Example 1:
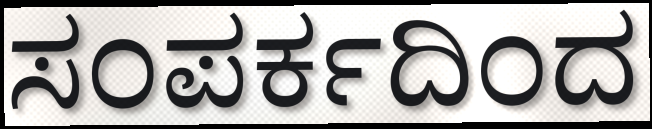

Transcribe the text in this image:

ಸಂಪರ್ಕದಿಂದ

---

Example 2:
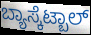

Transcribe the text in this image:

ಬ್ಯಾಸ್ಕೆಟ್ಬಾಲ್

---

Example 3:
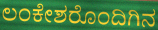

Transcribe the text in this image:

ಲಂಕೇಶರೊಂದಿಗಿನ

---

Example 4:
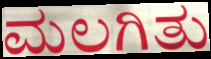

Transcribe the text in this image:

ಮಲಗಿತು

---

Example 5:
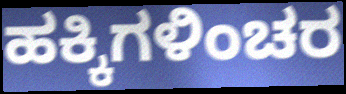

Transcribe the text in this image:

ಹಕ್ಕಿಗಳಿಂಚರ